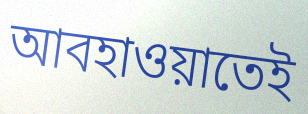
আবহাওয়াতেই